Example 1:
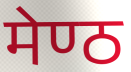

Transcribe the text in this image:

मेण्ठ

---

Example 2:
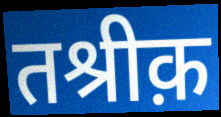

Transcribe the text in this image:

तश्रीक़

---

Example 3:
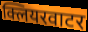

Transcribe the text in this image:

क्लियरवाटर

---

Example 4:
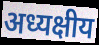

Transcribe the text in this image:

अध्यक्षीय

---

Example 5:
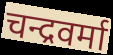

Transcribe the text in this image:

चन्द्रवर्मा